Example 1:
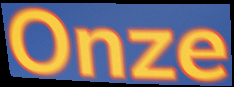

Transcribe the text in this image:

Onze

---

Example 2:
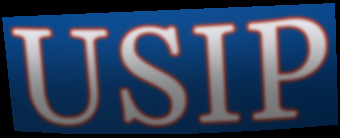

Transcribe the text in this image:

USIP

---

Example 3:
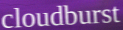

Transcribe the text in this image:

cloudburst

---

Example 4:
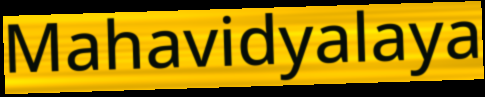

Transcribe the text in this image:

Mahavidyalaya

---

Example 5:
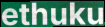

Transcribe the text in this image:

ethuku